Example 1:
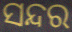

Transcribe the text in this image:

ସନ୍ଦର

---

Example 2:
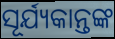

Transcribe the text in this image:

ସୂର୍ଯ୍ୟକାନ୍ତଙ୍କ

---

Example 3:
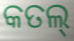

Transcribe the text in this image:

କତଲ୍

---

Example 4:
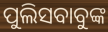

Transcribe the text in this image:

ପୁଲିସବାବୁଙ୍କ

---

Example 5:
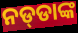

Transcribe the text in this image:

ନଡ୍‌ଡାଙ୍କ